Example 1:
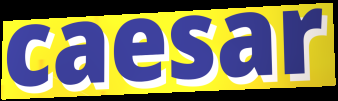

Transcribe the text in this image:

caesar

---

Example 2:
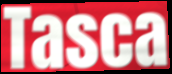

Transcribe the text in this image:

Tasca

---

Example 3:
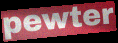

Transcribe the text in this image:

pewter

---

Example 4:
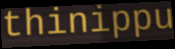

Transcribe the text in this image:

thinippu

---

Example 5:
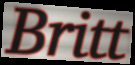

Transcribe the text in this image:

Britt